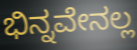
ಭಿನ್ನವೇನಲ್ಲ